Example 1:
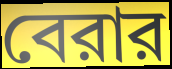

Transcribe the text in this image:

বেরার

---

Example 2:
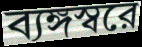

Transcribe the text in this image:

ব্যঙ্গস্বরে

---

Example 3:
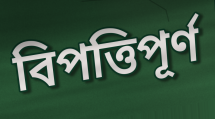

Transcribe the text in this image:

বিপত্তিপূর্ণ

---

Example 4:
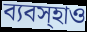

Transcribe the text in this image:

ব্যবস্হাও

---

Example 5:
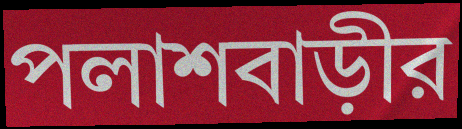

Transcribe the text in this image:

পলাশবাড়ীর